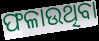
ଫଳାଉଥିବା